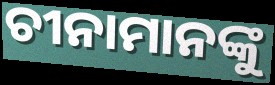
ଚୀନାମାନଙ୍କୁ